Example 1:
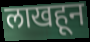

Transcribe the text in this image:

लाखहून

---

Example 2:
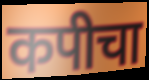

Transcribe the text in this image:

कपीचा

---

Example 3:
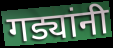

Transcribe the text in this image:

गड्यांनी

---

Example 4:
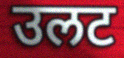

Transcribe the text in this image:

उलट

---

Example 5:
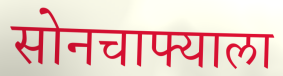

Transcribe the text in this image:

सोनचाफ्याला